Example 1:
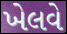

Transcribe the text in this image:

ખેલવે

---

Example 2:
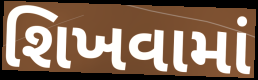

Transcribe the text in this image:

શિખવામાં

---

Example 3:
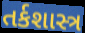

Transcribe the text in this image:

તર્કશાસ્ત્ર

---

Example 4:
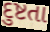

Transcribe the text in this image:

દુષ્ટતા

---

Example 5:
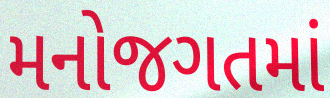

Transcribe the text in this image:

મનોજગતમાં